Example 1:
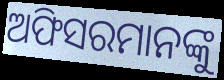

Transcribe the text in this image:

ଅଫିସରମାନଙ୍କୁ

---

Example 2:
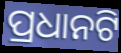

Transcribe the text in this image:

ପ୍ରଧାନଟି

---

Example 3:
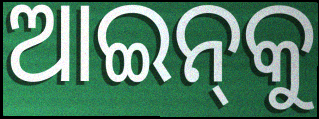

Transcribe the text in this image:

ଆଇନ୍‍କୁ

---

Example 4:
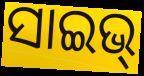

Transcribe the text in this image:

ସାଇଭ୍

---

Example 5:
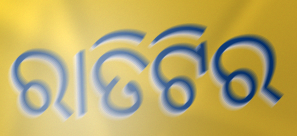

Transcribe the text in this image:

ରାତିଟିର